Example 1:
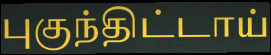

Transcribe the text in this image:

புகுந்திட்டாய்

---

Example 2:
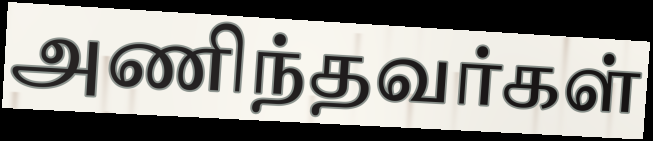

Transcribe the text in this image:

அணிந்தவர்கள்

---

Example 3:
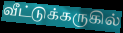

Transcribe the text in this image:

வீட்டுக்கருகில்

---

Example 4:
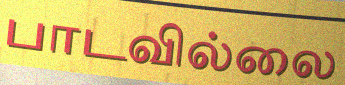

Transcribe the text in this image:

பாடவில்லை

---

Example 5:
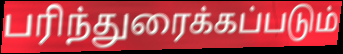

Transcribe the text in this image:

பரிந்துரைக்கப்படும்